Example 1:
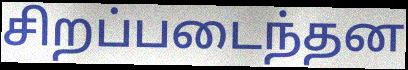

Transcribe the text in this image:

சிறப்படைந்தன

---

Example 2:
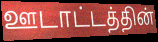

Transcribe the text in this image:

ஊடாட்டத்தின்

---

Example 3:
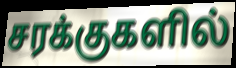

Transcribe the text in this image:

சரக்குகளில்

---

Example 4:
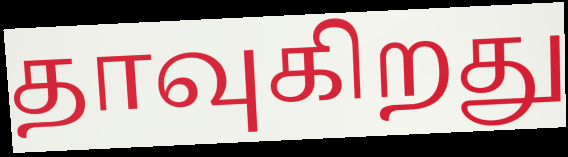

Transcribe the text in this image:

தாவுகிறது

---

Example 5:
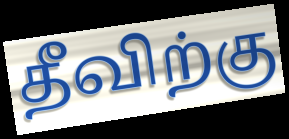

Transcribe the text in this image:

தீவிற்கு